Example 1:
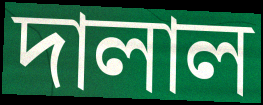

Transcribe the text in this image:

দালাল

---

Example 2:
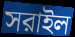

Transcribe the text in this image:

সরাইল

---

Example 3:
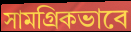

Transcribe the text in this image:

সামগ্রিকভাবে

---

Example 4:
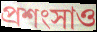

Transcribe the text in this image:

প্রশংসাও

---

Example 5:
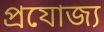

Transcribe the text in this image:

প্রযোজ্য